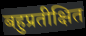
बहुप्रतीक्षित